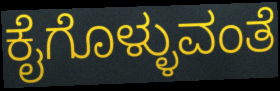
ಕೈಗೊಳ್ಳುವಂತೆ